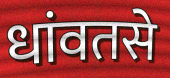
धांवतसे